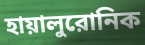
হায়ালুরোনিক